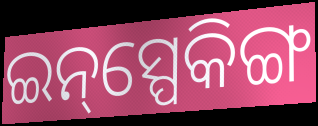
ଇନ୍‌ସ୍ପେକିଙ୍ଗ